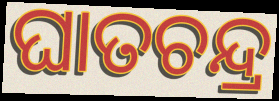
ଘାତଚନ୍ଦ୍ର